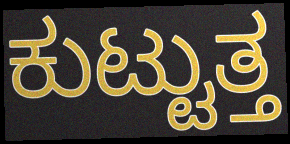
ಕುಟ್ಟುತ್ತ